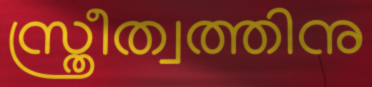
സ്ത്രീത്വത്തിനു